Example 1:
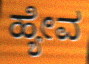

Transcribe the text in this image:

ಹ್ಯೇವ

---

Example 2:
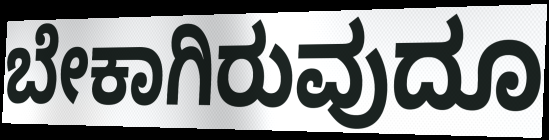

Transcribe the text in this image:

ಬೇಕಾಗಿರುವುದೂ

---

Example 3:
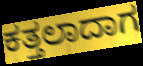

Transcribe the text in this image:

ಕತ್ತಲಾದಾಗ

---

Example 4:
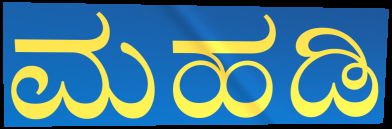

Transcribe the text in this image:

ಮಹಡಿ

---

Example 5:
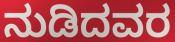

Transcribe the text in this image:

ನುಡಿದವರ